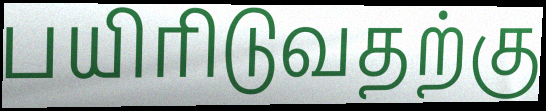
பயிரிடுவதற்கு